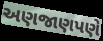
અણજાણપણે